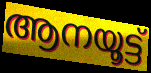
ആനയൂട്ട്